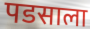
पडसाला